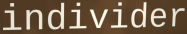
individer